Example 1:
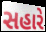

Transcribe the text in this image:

સહારે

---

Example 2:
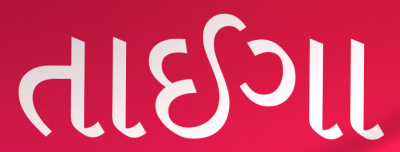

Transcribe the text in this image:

તાઈગા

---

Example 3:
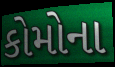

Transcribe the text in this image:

કોમોના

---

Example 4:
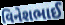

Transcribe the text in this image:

વિનેશભાઈ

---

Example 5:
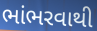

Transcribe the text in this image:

ભાંભરવાથી